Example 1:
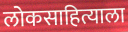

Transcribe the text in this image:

लोकसाहित्याला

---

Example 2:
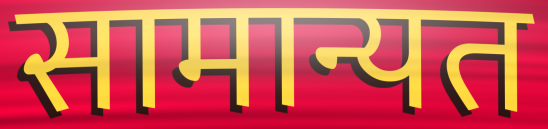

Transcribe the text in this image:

सामान्यत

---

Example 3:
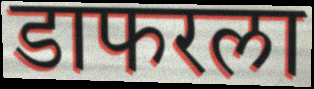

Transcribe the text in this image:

डाफरला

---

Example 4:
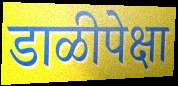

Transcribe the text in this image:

डाळीपेक्षा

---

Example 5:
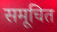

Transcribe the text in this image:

समूचित